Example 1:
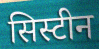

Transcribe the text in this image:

सिस्टीन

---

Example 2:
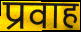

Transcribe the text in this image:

प्रवाह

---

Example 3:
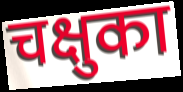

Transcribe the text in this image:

चक्षुका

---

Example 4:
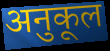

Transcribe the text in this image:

अनुकूल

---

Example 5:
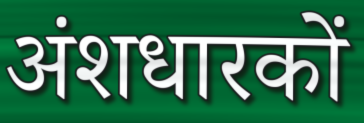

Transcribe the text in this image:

अंशधारकों